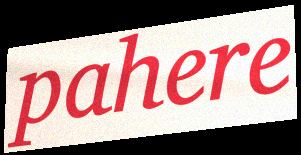
pahere